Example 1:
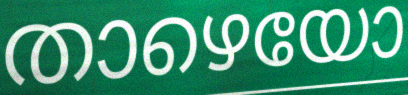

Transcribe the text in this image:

താഴെയോ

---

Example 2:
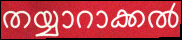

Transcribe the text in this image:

തയ്യാറാക്കൽ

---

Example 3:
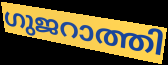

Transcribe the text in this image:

ഗുജറാത്തി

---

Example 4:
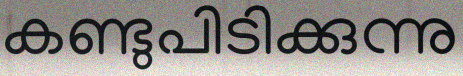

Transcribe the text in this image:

കണ്ടുപിടിക്കുന്നു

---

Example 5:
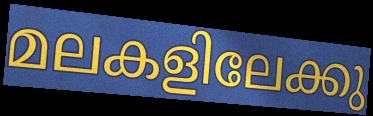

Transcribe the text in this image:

മലകളിലേക്കു